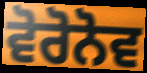
ਵੋਰੋਨੋਵ